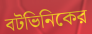
বটভিনিকের